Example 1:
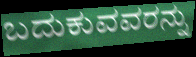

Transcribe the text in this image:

ಬದುಕುವವರನ್ನು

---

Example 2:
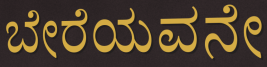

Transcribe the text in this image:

ಬೇರೆಯವನೇ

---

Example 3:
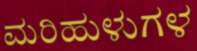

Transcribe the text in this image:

ಮರಿಹುಳುಗಳ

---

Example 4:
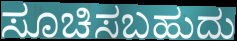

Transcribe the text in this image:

ಸೂಚಿಸಬಹುದು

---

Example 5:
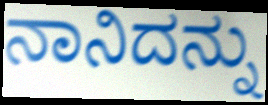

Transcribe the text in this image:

ನಾನಿದನ್ನು